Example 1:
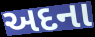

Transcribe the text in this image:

અદના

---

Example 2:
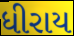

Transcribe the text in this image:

ધીરાય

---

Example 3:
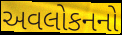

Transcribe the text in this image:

અવલોકનનો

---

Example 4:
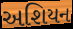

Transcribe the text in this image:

અશિયન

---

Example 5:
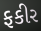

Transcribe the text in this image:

ફકીર